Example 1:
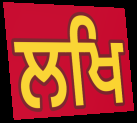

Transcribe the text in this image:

ਲਖਿ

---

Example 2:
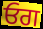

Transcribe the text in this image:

ਓਗ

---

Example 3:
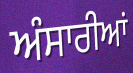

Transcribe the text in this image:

ਅੰਸਾਰੀਆਂ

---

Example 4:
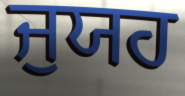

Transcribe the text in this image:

ਜੁਯਹ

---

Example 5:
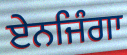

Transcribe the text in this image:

ਏਨਜਿੰਗਾ